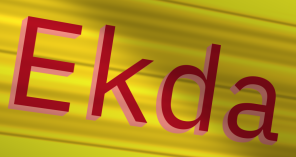
Ekda